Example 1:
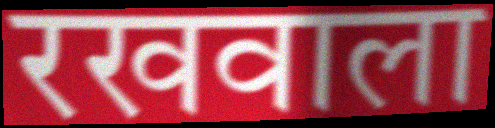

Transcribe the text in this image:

रखवाला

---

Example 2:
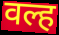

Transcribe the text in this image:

वल्ह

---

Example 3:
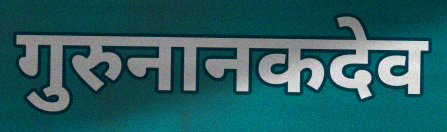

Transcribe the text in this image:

गुरुनानकदेव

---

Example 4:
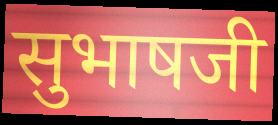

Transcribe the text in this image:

सुभाषजी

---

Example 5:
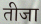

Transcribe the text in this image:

तीजा